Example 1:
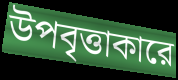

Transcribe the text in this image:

উপবৃত্তাকারে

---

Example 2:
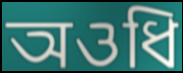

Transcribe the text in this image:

অওধি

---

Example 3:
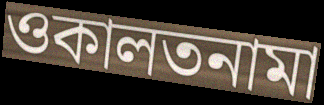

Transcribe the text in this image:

ওকালতনামা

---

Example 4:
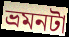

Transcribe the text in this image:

ভ্রমনটা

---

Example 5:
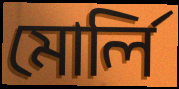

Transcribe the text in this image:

মোর্লি